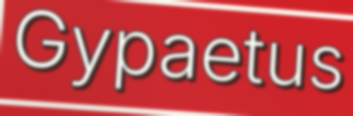
Gypaetus